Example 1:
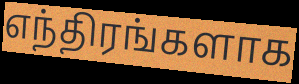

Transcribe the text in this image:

எந்திரங்களாக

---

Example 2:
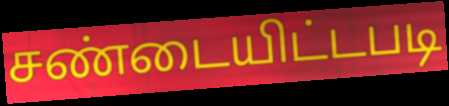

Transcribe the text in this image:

சண்டையிட்டபடி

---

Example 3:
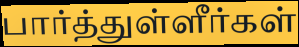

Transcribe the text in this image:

பார்த்துள்ளீர்கள்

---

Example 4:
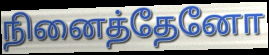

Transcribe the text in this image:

நினைத்தேனோ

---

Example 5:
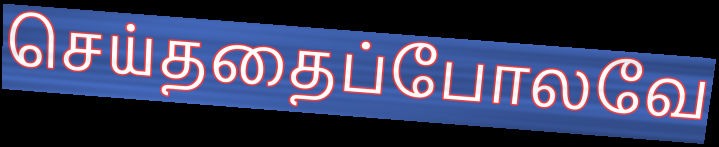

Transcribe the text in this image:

செய்ததைப்போலவே